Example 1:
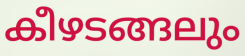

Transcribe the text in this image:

കീഴടങ്ങലും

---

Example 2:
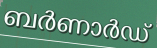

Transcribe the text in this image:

ബർണാർഡ്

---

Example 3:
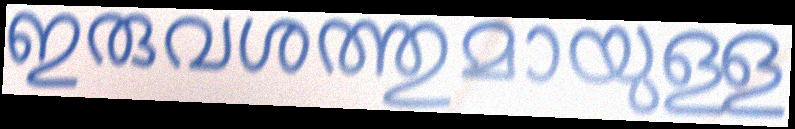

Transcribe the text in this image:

ഇരുവശത്തുമായുള്ള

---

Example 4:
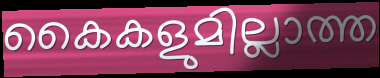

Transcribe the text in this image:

കൈകളുമില്ലാത്ത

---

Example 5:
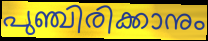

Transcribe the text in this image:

പുഞ്ചിരിക്കാനും